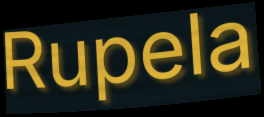
Rupela